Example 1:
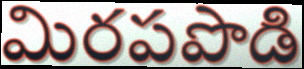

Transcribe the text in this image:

మిరపపొడి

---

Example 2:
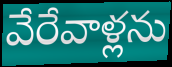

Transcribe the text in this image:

వేరేవాళ్లను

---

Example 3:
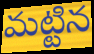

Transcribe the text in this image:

మట్టిన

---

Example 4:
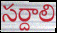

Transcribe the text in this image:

సర్దాలి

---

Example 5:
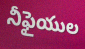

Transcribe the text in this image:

నీఫైయుల